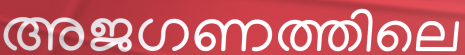
അജഗണത്തിലെ